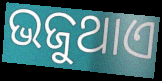
ଭଜୁଥାଏ